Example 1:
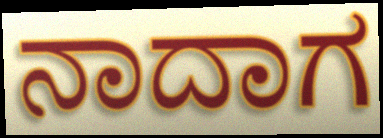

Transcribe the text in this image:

ನಾದಾಗ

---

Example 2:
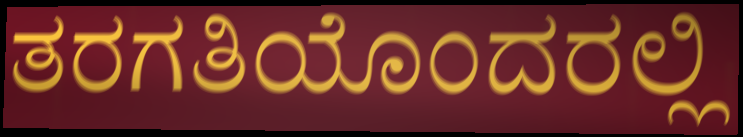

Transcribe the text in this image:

ತರಗತಿಯೊಂದರಲ್ಲಿ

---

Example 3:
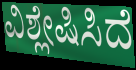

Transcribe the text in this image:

ವಿಶ್ಲೇಷಿಸಿದೆ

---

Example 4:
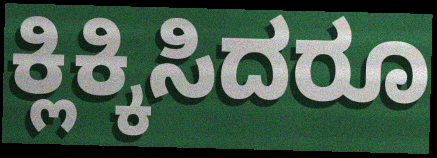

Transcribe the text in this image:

ಕ್ಲಿಕ್ಕಿಸಿದರೂ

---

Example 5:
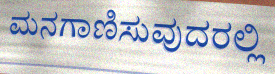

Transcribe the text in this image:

ಮನಗಾಣಿಸುವುದರಲ್ಲಿ